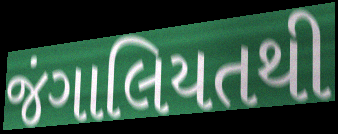
જંગાલિયતથી